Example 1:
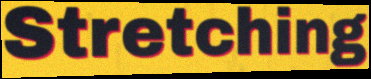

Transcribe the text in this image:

Stretching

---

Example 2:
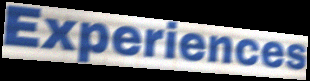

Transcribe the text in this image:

Experiences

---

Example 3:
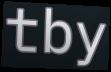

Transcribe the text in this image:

tby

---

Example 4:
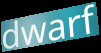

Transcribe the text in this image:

dwarf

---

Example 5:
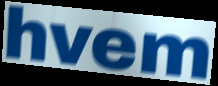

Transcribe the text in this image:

hvem